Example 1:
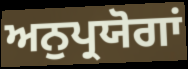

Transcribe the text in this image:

ਅਨੁਪ੍ਰਯੋਗਾਂ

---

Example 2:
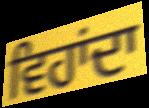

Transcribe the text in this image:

ਵਿਹਾਂਦਾ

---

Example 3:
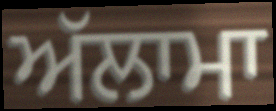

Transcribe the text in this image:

ਅੱਲਾਮਾ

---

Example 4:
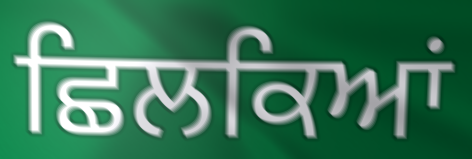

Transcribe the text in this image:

ਛਿਲਕਿਆਂ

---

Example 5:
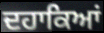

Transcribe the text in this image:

ਦਹਾਕਿਆਂ